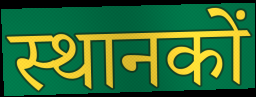
स्थानकों